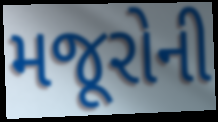
મજૂરોની